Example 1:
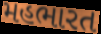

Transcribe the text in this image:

મહભારત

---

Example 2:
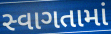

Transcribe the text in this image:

સ્વાગતામાં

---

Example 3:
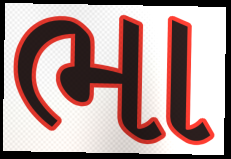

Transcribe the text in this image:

ભા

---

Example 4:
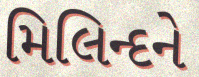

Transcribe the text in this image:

મિલિન્દને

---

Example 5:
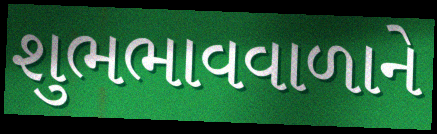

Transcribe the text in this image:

શુભભાવવાળાને